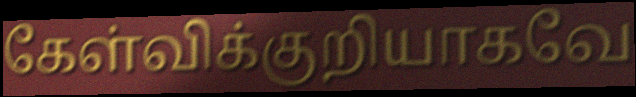
கேள்விக்குறியாகவே